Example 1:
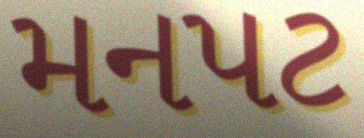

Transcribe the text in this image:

મનપટ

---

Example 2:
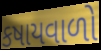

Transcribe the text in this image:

કષાયવાળો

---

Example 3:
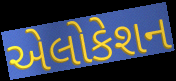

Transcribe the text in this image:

એલોકેશન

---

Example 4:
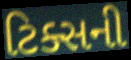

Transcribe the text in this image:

ટિક્સની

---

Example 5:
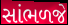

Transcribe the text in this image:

સાંભળજે